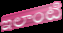
ఇలాంటి